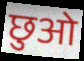
छुओ